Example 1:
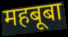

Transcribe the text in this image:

महबूबा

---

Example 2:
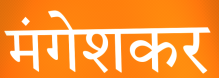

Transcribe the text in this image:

मंगेशकर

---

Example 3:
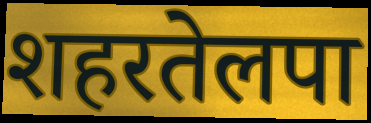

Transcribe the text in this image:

शहरतेलपा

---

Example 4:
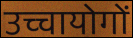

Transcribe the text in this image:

उच्‍चायोगों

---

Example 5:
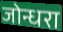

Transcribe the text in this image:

जोन्धरा